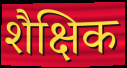
शैक्षिक